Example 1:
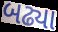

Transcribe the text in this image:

બઢ્યા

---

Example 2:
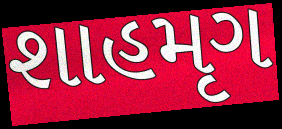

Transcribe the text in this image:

શાહમૃગ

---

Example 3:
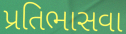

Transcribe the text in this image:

પ્રતિભાસવા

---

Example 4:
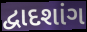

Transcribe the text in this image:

દ્વાદશાંગ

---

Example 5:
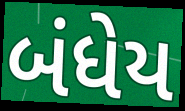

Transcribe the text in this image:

બંધેય